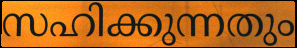
സഹിക്കുന്നതും